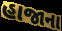
હાજાના